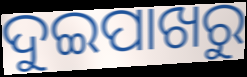
ଦୁଇପାଖରୁ